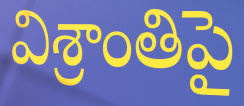
విశ్రాంతిపై